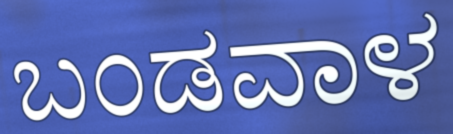
ಬಂಡವಾಳ